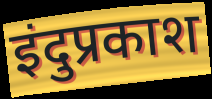
इंदुप्रकाश